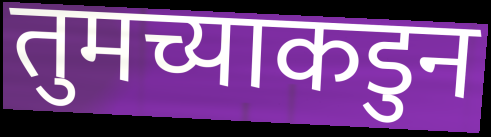
तुमच्याकडुन